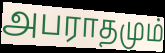
அபராதமும்